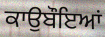
ਕਾਉਬੌਇਆਂ